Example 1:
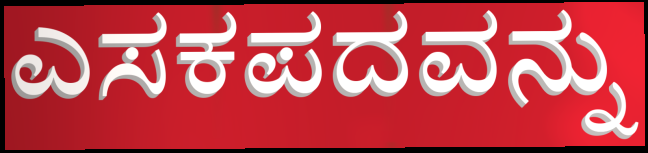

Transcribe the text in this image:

ಎಸಕಪದವನ್ನು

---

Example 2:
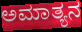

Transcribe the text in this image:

ಅಮಾತ್ಯನ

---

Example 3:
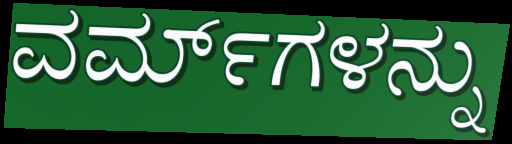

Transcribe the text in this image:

ವರ್ಮ್‌ಗಳನ್ನು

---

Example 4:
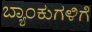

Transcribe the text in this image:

ಬ್ಯಾಂಕುಗಳಿಗೆ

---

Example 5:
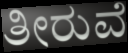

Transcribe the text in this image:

ತೀರುವೆ